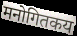
मनोगितकय